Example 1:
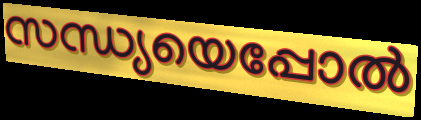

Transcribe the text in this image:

സന്ധ്യയെപ്പോൽ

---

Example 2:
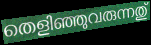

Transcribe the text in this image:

തെളിഞ്ഞുവരുന്നതു്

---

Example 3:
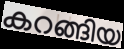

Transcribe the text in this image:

കറങ്ങിയ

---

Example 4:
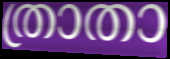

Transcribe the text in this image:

ത്രാതാ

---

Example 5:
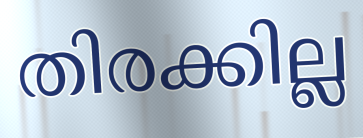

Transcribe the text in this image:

തിരക്കില്ല